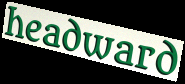
headward